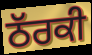
ਠੱਰਕੀ